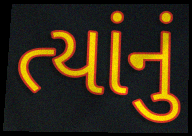
ત્યાંનું